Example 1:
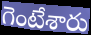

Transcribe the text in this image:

గెంటేశారు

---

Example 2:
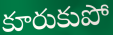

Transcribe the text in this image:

కూరుకుపో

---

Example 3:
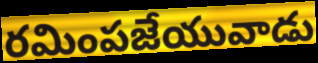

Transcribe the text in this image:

రమింపజేయువాడు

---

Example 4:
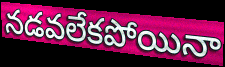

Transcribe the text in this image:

నడవలేకపోయినా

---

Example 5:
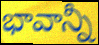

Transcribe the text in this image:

భావాన్నీ